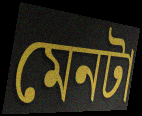
মেনটা